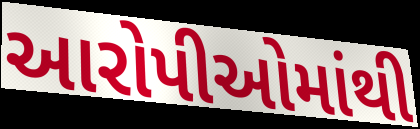
આરોપીઓમાંથી